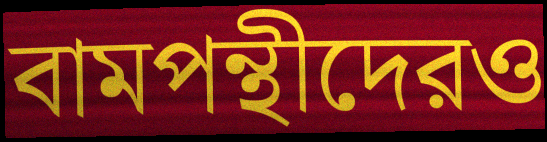
বামপন্থীদেরও